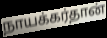
நாயக்கர்தான்